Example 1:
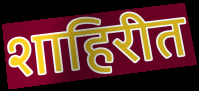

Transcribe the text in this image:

शाहिरीत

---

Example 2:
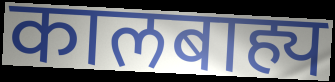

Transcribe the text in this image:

कालबाह्य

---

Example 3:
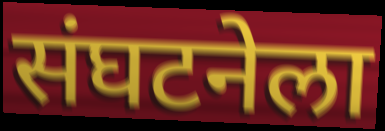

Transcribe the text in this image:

संघटनेला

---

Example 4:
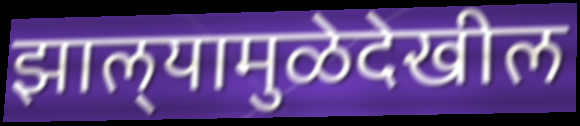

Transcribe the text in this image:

झाल्यामुळेदेखील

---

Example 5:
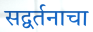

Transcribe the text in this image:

सद्वर्तनाचा